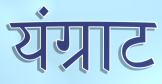
यंग्राट